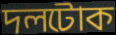
দলটোক